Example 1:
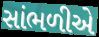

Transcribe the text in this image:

સાંભળીએ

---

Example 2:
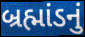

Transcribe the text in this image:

બ્રહ્માંડનું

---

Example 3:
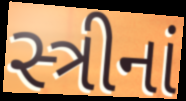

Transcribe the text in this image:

સ્ત્રીનાં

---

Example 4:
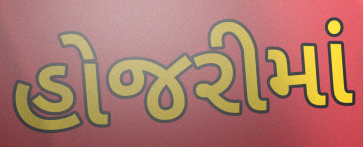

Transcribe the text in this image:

હોજરીમાં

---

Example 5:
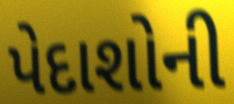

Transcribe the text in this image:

પેદાશોની